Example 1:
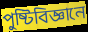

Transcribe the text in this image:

পুষ্টিবিজ্ঞানে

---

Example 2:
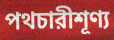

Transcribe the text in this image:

পথচারীশূণ্য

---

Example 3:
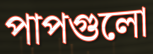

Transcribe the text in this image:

পাপগুলো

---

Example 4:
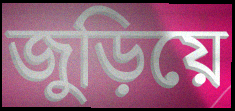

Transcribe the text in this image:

জুড়িয়ে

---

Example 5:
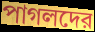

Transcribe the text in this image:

পাগলদের